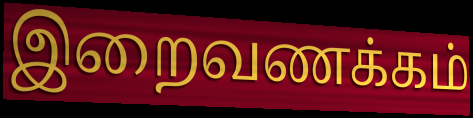
இறைவணக்கம்